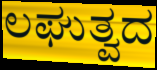
ಲಘುತ್ವದ